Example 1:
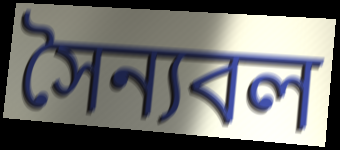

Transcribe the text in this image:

সৈন্যবল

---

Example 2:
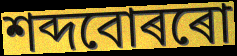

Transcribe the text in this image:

শব্দবোৰৰো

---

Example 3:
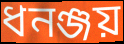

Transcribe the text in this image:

ধনঞ্জয়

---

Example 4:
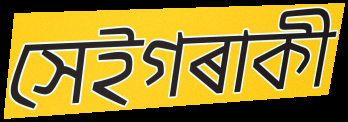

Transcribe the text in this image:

সেইগৰাকী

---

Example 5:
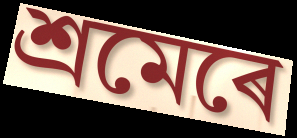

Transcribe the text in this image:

শ্ৰমেৰে